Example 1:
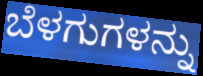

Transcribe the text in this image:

ಬೆಳಗುಗಳನ್ನು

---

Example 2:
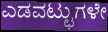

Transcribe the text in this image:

ಎಡವಟ್ಟುಗಳೇ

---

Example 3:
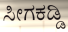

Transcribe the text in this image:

ಸೀಗಕಡ್ಡಿ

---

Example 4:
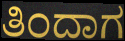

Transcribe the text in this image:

ತಿಂದಾಗ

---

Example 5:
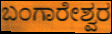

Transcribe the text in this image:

ಬಂಗಾರೇಶ್ವರ